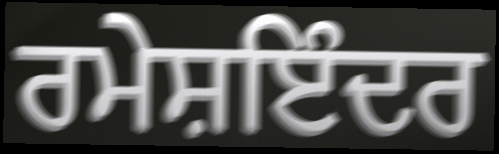
ਰਮੇਸ਼ਇੰਦਰ